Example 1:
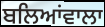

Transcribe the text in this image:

ਬਲਿਆਂਵਾਲਾ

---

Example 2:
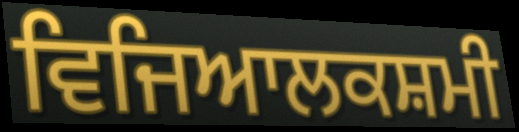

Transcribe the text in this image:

ਵਿਜਿਆਲਕਸ਼ਮੀ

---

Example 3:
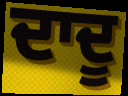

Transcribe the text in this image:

ਦਾਦੂ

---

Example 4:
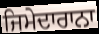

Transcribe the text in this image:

ਜਿਮੇਦਾਰਾਨਾ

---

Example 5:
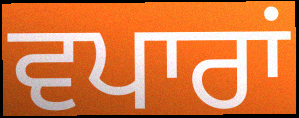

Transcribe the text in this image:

ਵਪਾਰਾਂ